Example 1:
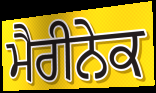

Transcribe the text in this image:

ਮੈਰੀਨੇਕ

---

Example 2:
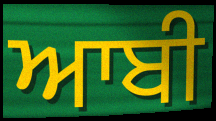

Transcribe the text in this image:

ਆਬੀ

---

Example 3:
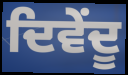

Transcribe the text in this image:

ਦਿਵੇਂਦੂ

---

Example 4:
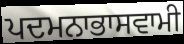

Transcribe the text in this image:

ਪਦਮਨਾਭਾਸਵਾਮੀ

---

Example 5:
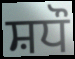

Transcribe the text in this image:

ਸ਼ਧੌ